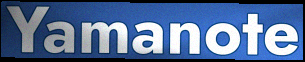
Yamanote